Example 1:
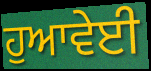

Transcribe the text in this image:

ਹੁਆਵੇਈ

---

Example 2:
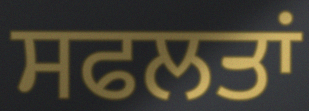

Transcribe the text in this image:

ਸਫਲਤਾਂ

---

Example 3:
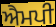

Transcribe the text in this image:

ਐਮਪੀ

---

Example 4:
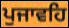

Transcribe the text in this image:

ਪੁਜਾਵਹਿ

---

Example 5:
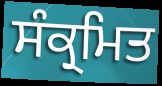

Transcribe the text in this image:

ਸੰਕ੍ਰਮਿਤ